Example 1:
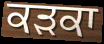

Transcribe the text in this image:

ਕੜਕਾ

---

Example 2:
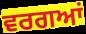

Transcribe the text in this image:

ਵਰਗਆਂ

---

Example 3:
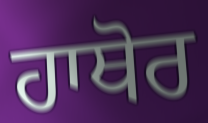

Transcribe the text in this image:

ਹਾਥੋਰ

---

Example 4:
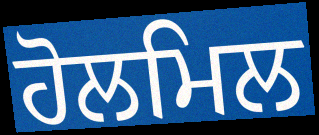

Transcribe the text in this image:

ਹੋਲਮਿਲ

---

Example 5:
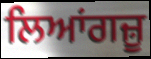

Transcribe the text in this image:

ਲਿਆਂਗਜ਼ੂ